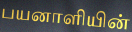
பயனாளியின்